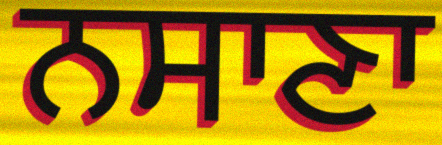
ਨਸਾਣਾ